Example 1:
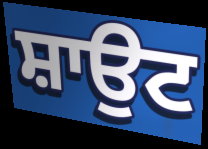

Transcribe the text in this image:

ਸ਼ਾਉਟ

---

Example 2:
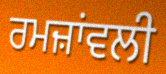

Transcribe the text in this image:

ਰਮਜ਼ਾਂਵਲੀ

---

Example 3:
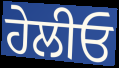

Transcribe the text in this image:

ਹੇਲੀਓ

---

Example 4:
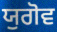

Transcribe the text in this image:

ਯੁਗੋਵ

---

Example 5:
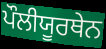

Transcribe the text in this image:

ਪੌਲੀਯੂਰਥੇਨ